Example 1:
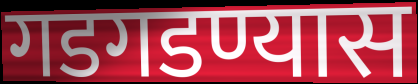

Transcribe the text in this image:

गडगडण्यास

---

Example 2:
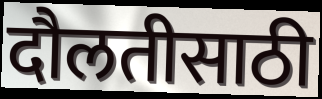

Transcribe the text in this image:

दौलतीसाठी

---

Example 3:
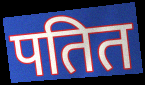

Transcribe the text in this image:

पतित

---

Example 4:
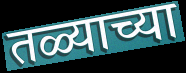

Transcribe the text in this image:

तळ्याच्या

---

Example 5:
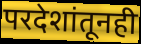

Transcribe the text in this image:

परदेशांतूनही